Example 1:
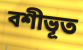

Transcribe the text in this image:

বশীভূত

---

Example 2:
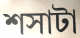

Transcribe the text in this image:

শসাটা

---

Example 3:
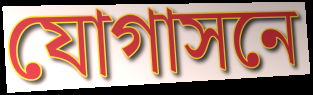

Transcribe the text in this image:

যোগাসনে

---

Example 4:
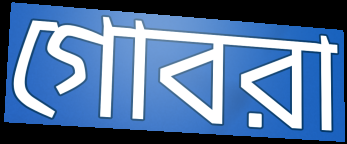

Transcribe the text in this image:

গোবরা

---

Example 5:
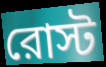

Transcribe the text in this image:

রোস্ট